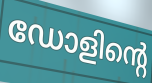
ഡോളിന്റെ